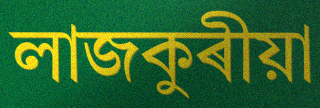
লাজকুৰীয়া